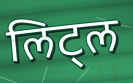
लिट्ल